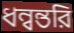
ধন্বন্তরি